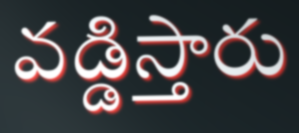
వడ్డిస్తారు